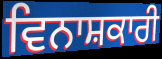
ਵਿਨਾਸ਼ਕਾਰੀ